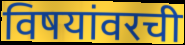
विषयांवरची